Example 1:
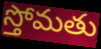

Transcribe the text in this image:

స్తోమతు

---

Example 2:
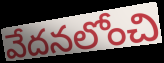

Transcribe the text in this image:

వేదనలోంచి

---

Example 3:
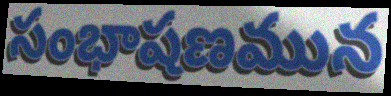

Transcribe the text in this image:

సంభాషణమున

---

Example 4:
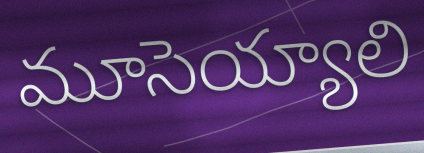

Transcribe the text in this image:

మూసెయ్యాలి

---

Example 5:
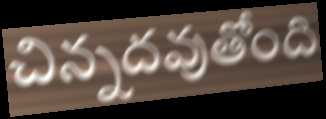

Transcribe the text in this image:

చిన్నదవుతోంది